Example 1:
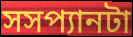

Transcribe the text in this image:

সসপ্যানটা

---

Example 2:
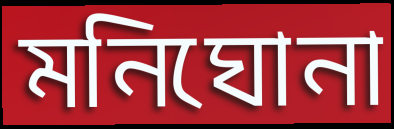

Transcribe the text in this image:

মনিঘোনা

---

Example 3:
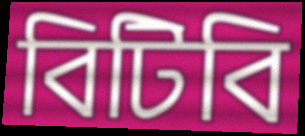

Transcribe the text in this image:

বিটিবি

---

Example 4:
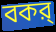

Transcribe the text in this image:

বকর্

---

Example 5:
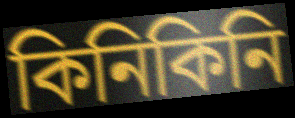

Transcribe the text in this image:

কিনিকিনি